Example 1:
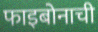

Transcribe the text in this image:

फाइबोनाची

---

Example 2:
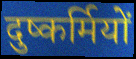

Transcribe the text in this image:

दुष्कर्मियों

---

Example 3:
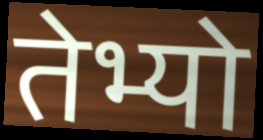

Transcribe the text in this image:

तेभ्यो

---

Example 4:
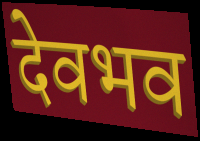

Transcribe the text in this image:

देवभव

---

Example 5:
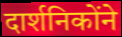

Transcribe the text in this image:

दार्शनिकोंने